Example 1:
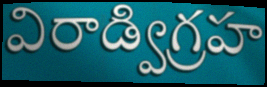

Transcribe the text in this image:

విరాడ్విగ్రహ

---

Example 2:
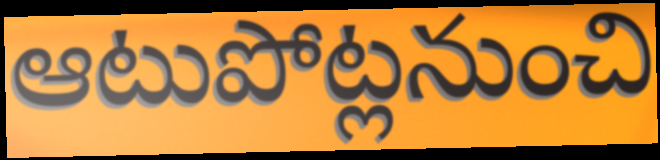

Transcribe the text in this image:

ఆటుపోట్లనుంచి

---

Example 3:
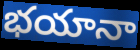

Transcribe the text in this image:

భయానా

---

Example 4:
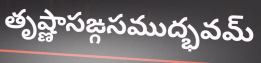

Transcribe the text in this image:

తృష్ణాసఙ్గసముద్భవమ్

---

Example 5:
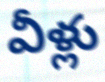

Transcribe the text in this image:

వీళ్లు